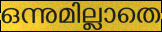
ഒന്നുമില്ലാതെ